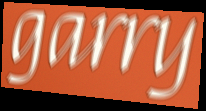
garry